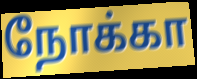
நோக்கா